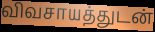
விவசாயத்துடன்